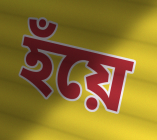
হঁয়ে